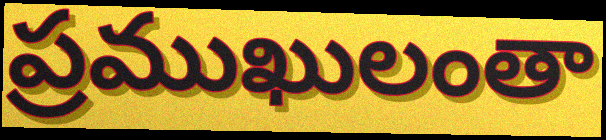
ప్రముఖులంతా